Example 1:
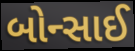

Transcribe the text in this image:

બોન્સાઈ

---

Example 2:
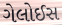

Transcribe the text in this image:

ગેલોઈસ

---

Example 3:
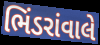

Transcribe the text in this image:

ભિંડરાંવાલે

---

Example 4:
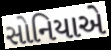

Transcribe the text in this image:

સોનિયાએ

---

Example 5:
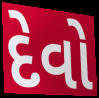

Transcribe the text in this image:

દેવો